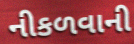
નીકળવાની